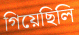
গিয়েছিলি